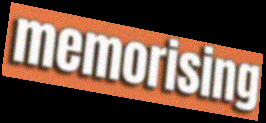
memorising